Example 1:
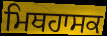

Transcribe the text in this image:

ਮਿਥਹਾਸਕ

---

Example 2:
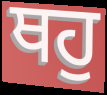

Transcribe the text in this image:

ਥਹੁ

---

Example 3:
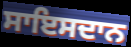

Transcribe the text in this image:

ਸਾਇਸਦਾਨ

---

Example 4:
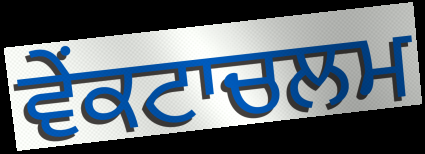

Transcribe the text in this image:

ਵੇਂਕਟਾਚਲਮ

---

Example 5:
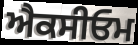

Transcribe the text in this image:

ਐਕਸੀਓਮ